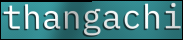
thangachi